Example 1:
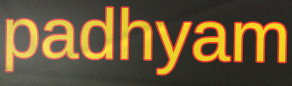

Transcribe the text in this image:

padhyam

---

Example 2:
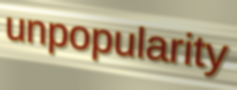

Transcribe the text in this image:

unpopularity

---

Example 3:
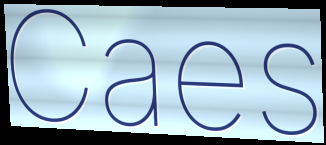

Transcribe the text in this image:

Caes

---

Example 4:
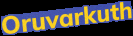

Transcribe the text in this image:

Oruvarkuth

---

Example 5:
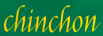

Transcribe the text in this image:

chinchon